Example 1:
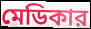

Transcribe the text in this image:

মেডিকার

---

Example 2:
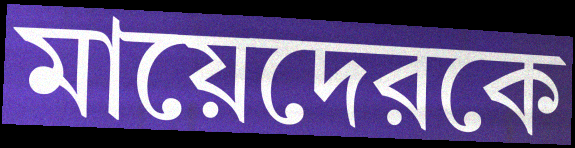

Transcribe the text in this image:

মায়েদেরকে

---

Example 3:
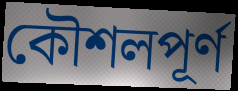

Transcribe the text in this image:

কৌশলপূর্ণ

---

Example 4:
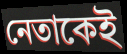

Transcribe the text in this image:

নেতাকেই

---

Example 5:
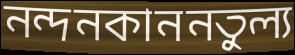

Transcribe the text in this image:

নন্দনকাননতুল্য